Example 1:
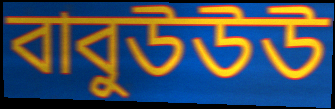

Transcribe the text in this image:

বাবুউউউ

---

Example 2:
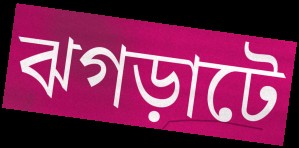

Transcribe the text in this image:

ঝগড়াটে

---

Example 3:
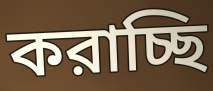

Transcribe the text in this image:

করাচ্ছি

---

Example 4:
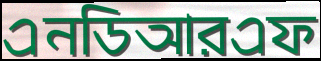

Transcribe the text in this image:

এনডিআরএফ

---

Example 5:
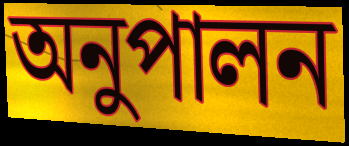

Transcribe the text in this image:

অনুপালন